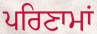
ਪਰਿਣਾਮਾਂ